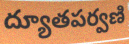
ద్యూతపర్వణి